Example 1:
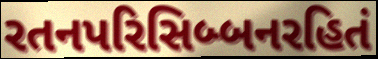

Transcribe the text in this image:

રતનપરિસિબ્બનરહિતં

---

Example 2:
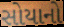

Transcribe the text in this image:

સોયાનો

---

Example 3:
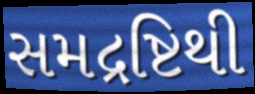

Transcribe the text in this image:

સમદ્રષ્ટિથી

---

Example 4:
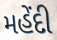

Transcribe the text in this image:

મહેંદી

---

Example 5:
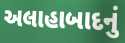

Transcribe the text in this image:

અલાહાબાદનું